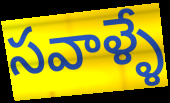
సవాళ్ళే